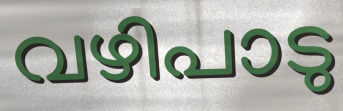
വഴിപാടു